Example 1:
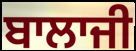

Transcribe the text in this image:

ਬਾਲਾਜੀ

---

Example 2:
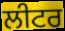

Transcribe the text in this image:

ਲੀਟਰ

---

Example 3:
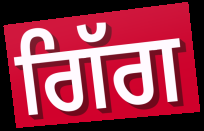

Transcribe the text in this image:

ਗਿੱਗ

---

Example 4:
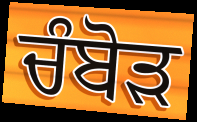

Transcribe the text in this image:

ਚੰਬੋੜ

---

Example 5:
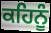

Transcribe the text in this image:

ਕਹਿਨੂੰ